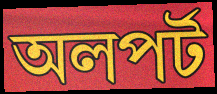
অলপর্ট